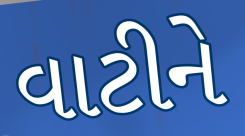
વાટીને